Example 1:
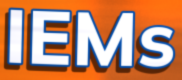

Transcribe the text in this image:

IEMs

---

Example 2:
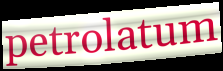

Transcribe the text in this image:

petrolatum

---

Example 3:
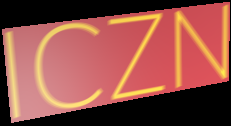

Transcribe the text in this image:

ICZN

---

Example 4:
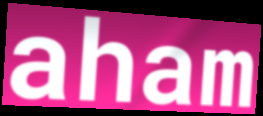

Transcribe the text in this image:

aham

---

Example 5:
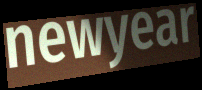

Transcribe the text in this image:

newyear